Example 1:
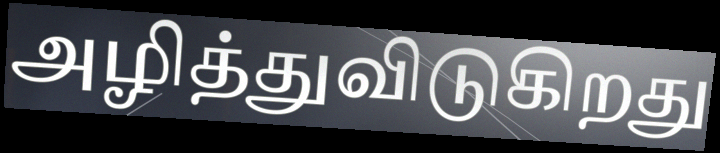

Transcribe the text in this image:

அழித்துவிடுகிறது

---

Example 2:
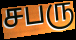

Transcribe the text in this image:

சபரு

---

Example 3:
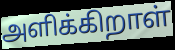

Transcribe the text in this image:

அளிக்கிறாள்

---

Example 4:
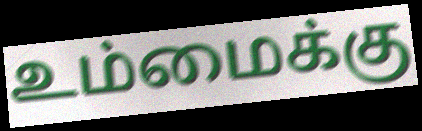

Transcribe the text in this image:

உம்மைக்கு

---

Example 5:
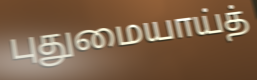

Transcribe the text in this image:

புதுமையாய்த்